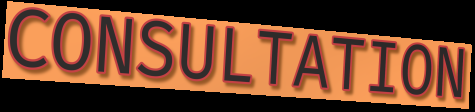
CONSULTATION